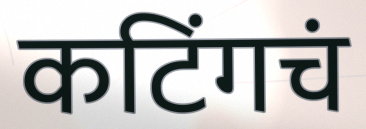
कटिंगचं